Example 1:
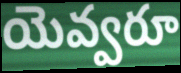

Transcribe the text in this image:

యెవ్వరూ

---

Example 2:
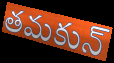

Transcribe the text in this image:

తమకున్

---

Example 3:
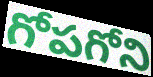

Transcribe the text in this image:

గోపగోని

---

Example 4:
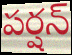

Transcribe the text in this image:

పర్షన్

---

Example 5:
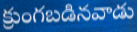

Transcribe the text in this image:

క్రుంగబడినవాడు